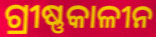
ଗ୍ରୀଷ୍ଣକାଳୀନ